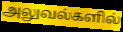
அலுவல்களில்